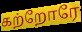
கற்றோரே